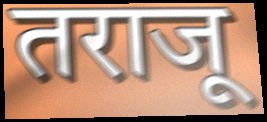
तराजू